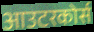
आउटरकोर्स